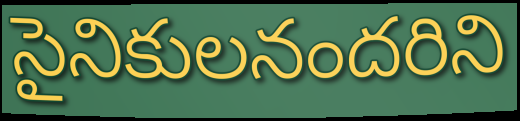
సైనికులనందరిని